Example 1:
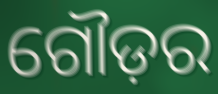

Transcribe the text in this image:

ଗୌଡ଼ର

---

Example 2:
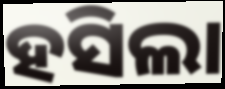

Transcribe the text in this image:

ହସିଲା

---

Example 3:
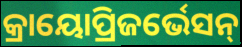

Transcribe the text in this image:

କ୍ରାୟୋପ୍ରିଜର୍ଭେସନ୍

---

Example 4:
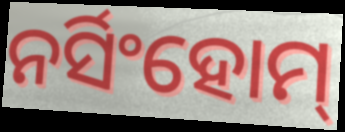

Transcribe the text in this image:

ନର୍ସିଂହୋମ୍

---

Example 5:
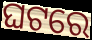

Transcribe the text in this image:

ଘଟରେ